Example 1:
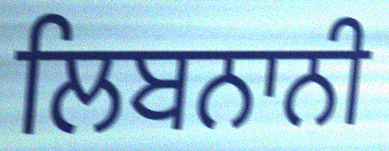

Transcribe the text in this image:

ਲਿਬਨਾਨੀ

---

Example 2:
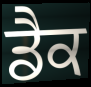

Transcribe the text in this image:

ਡੈਕ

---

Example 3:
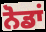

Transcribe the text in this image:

ਨੋਡਾਂ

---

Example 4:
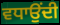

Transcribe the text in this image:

ਵਧਾਉਂਦੀ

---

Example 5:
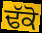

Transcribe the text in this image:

ਢੱਕੋ